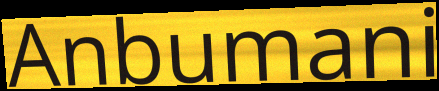
Anbumani